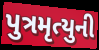
પુત્રમૃત્યુની